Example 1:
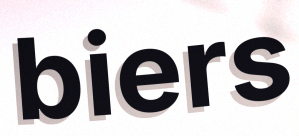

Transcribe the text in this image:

biers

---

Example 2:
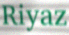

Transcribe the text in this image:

Riyaz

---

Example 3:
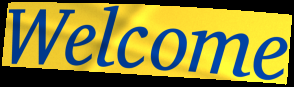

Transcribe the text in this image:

Welcome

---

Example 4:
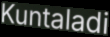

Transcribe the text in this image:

Kuntaladi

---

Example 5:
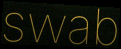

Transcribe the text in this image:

swab